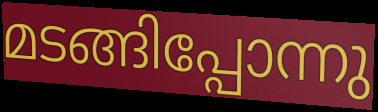
മടങ്ങിപ്പോന്നു